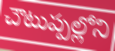
చౌటుప్పల్లోని